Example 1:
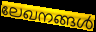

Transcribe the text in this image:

ലേഖനങ്ങൾ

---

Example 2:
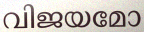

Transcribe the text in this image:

വിജയമോ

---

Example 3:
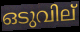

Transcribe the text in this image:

ഒടുവില്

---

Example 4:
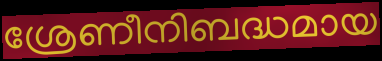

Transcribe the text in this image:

ശ്രേണീനിബദ്ധമായ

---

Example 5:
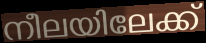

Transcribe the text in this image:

നീലയിലേക്ക്